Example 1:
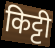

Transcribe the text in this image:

किट्टी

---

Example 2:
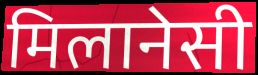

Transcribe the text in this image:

मिलानेसी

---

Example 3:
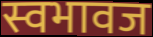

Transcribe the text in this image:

स्वभावज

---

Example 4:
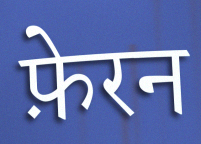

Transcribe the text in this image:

फ़ेरन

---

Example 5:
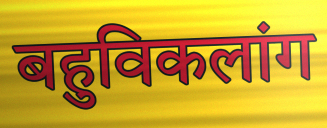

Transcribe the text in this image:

बहुविकलांग